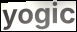
yogic